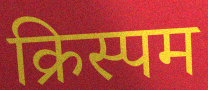
क्रिस्पम